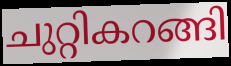
ചുറ്റികറങ്ങി